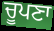
ਚੂਪਣਾ